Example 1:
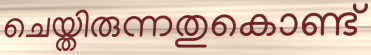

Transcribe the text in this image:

ചെയ്തിരുന്നതുകൊണ്ട്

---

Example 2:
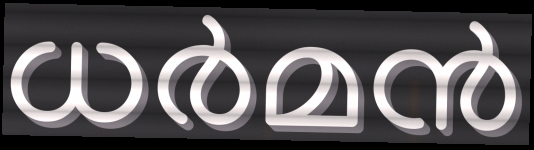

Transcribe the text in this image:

ധർമൻ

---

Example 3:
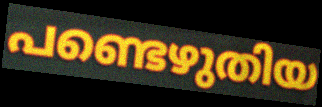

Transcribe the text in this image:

പണ്ടെഴുതിയ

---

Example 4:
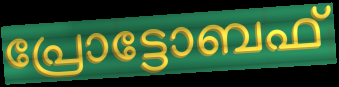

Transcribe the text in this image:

പ്രോട്ടോബഫ്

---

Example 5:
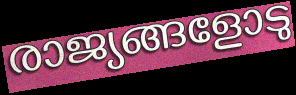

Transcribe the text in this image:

രാജ്യങ്ങളോടു